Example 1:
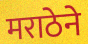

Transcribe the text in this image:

मराठेने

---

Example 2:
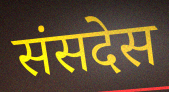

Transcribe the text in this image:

संसदेस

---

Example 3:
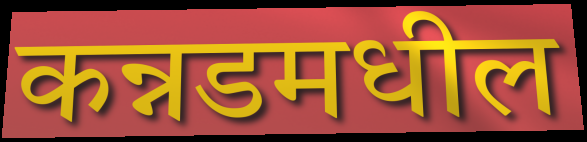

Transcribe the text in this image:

कन्नडमधील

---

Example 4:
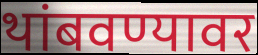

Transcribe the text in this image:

थांबवण्यावर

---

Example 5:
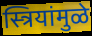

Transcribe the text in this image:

स्त्रियांमुळे